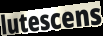
lutescens